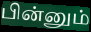
பின்னும்